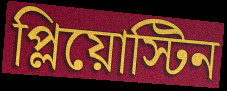
প্লিয়োস্টিন